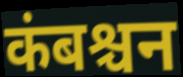
कंबश्चन